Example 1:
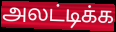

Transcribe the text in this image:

அலட்டிக்க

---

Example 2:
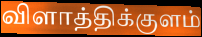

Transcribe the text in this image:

விளாத்திக்குளம்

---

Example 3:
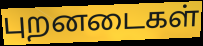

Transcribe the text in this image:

புறனடைகள்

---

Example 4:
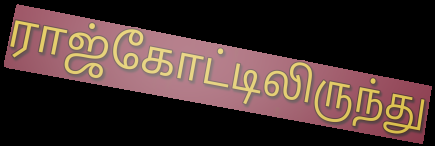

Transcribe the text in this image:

ராஜ்கோட்டிலிருந்து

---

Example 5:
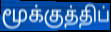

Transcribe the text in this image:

மூக்குத்திப்